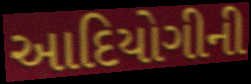
આદિયોગીની